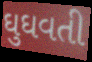
ઘુઘવતી